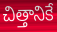
చిత్తానికే